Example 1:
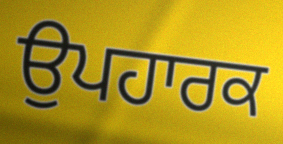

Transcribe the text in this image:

ਉਪਹਾਰਕ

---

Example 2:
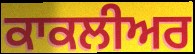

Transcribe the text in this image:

ਕਾਕਲੀਅਰ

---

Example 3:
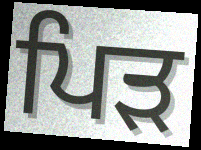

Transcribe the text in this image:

ਪਿੜ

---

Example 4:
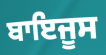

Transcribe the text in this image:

ਬਾਇਜੂਸ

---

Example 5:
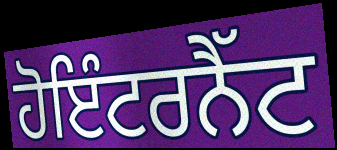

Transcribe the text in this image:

ਹੋਇੰਟਰਨੈੱਟ